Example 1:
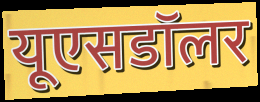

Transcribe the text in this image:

यूएसडॉलर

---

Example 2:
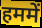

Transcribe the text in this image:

हममें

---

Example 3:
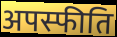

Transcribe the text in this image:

अपस्फीति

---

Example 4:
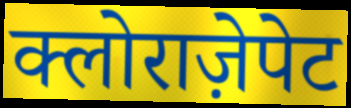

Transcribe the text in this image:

क्लोराज़ेपेट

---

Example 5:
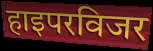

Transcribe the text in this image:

हाइपरविजर